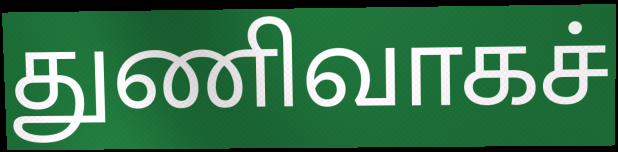
துணிவாகச்